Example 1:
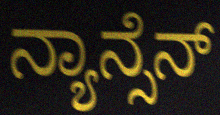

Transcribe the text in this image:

ನ್ಯಾನ್ಸೆನ್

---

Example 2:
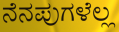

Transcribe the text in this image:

ನೆನಪುಗಳೆಲ್ಲ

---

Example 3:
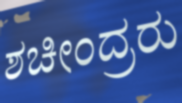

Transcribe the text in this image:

ಶಚೀಂದ್ರರು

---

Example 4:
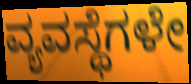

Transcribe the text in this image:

ವ್ಯವಸ್ಥೆಗಳೇ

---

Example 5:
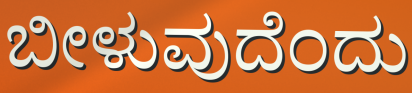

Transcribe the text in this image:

ಬೀಳುವುದೆಂದು